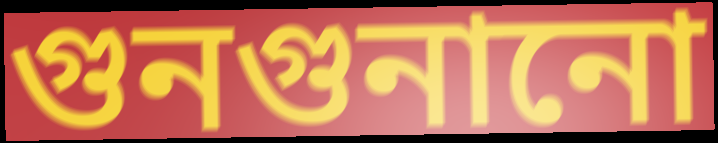
গুনগুনানো